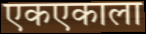
एकएकाला